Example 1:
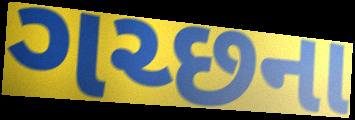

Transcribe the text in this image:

ગચ્છના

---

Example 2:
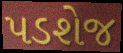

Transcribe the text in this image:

પડશેજ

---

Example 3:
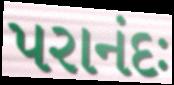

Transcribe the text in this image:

પરાનંદઃ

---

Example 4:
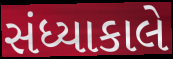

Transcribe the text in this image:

સંધ્યાકાલે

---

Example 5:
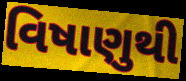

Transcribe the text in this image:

વિષાણુથી